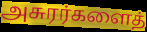
அசுரர்களைத்